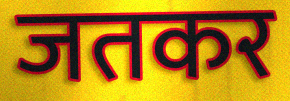
जतकर